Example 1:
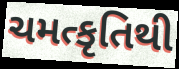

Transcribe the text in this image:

ચમત્કૃતિથી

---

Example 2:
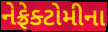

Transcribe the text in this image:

નેફ્રેક્ટોમીના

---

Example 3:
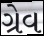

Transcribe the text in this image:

ગ્રેવ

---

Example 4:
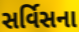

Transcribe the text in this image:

સર્વિસના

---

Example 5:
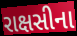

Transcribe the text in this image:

રાક્ષસીના